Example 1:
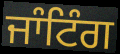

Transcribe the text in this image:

ਜਾੰਟਿੰਗ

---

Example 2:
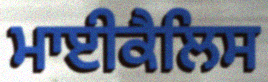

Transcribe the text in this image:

ਮਾਈਕੈਲਿਸ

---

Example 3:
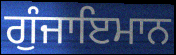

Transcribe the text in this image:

ਗੁੰਜਾਇਮਾਨ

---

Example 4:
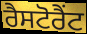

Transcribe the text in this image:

ਰੈਸਟੋਰੈਂਟ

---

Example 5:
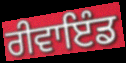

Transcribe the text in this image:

ਰੀਵਾਇੰਡ